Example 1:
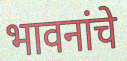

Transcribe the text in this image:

भावनांचे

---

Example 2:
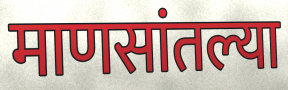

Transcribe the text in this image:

माणसांतल्या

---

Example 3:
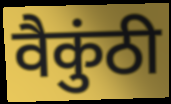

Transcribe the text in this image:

वैकुंठी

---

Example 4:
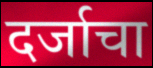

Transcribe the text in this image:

दर्जाचा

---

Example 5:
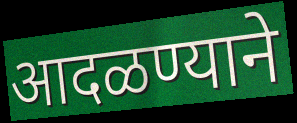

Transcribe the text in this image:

आदळण्याने